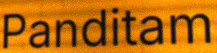
Panditam